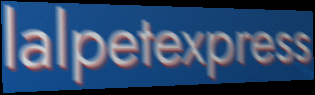
lalpetexpress